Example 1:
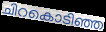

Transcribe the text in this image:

ചിറകൊടിഞ്ഞ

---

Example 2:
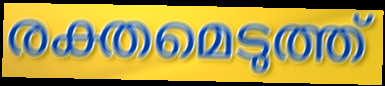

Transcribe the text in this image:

രക്തമെടുത്ത്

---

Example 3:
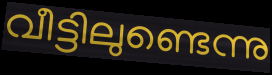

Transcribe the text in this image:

വീട്ടിലുണ്ടെന്നു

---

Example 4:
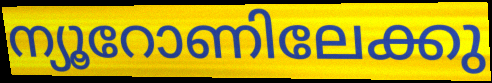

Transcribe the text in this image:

ന്യൂറോണിലേക്കു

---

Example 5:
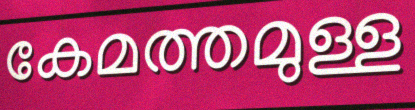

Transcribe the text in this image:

കേമത്തമുള്ള